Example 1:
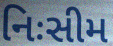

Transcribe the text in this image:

નિઃસીમ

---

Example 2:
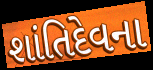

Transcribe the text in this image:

શાંતિદેવના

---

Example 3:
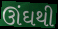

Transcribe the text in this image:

ઊંઘથી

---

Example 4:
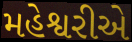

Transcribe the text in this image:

મહેશ્વરીએ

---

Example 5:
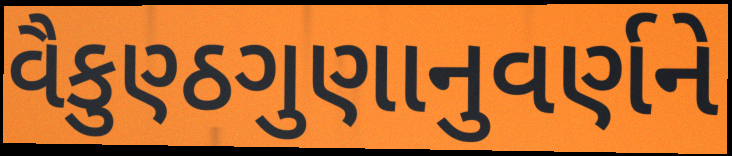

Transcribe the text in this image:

વૈકુણ્ઠગુણાનુવર્ણને